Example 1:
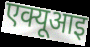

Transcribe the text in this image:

एक्यूआइ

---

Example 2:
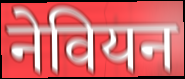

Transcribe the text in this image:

नेवियन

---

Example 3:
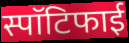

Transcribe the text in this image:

स्पॉटिफाई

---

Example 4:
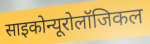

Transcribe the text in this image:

साइकोन्यूरोलॉजिकल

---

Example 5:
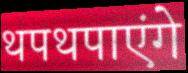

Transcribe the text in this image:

थपथपाएंगे